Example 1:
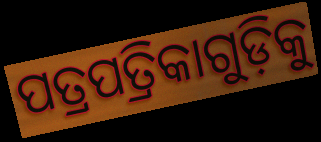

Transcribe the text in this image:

ପତ୍ରପତ୍ରିକାଗୁଡ଼ିକୁ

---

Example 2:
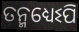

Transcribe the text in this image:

ତନ୍ମଧ୍ୟେଽପି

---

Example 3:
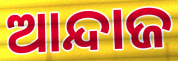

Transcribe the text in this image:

ଆନ୍ଦାଜ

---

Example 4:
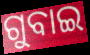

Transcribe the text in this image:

ଗୁବାଇ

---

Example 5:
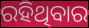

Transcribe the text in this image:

ରହିଥିବାର